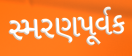
સ્મરણપૂર્વક